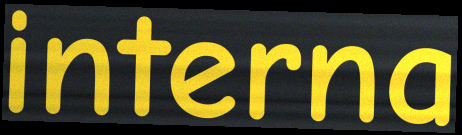
interna